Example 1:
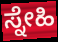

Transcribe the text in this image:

ಸ್ನೇಹಿ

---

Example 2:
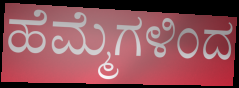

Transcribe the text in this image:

ಹೆಮ್ಮೆಗಳಿಂದ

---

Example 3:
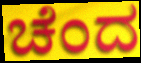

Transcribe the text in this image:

ಚೆಂದ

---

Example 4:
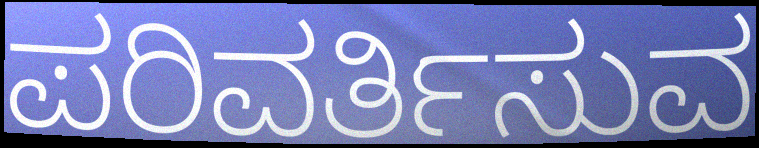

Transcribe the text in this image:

ಪರಿವರ್ತಿಸುವ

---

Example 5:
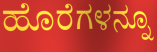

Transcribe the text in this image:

ಹೊರೆಗಳನ್ನೂ